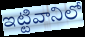
ఇట్టివానిలో